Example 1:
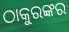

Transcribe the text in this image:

ଠାକୁରଙ୍କର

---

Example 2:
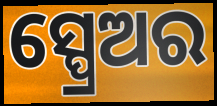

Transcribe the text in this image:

ସ୍ପ୍ରେଅର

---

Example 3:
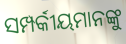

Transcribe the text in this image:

ସମ୍ପର୍କୀୟମାନଙ୍କୁ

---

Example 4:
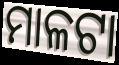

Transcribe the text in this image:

ମାଳଟା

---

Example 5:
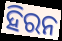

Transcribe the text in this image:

ହିରନ